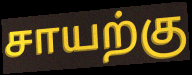
சாயற்கு